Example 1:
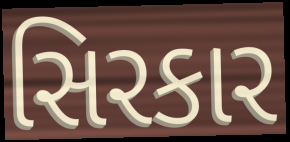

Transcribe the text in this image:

સિરકાર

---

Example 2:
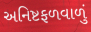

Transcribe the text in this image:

અનિષ્ટફળવાળું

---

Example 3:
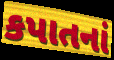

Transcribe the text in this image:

કપાતનાં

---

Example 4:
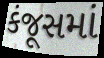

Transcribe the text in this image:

કંજૂસમાં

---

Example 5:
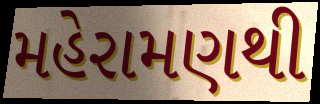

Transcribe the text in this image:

મહેરામણથી